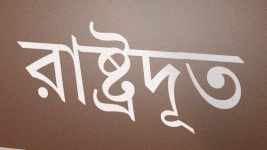
রাষ্ট্রদূত